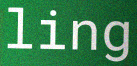
ling